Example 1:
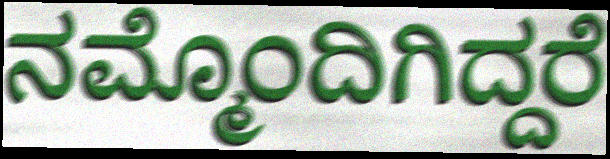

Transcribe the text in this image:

ನಮ್ಮೊಂದಿಗಿದ್ದರೆ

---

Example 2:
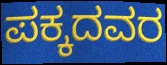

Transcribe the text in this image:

ಪಕ್ಕದವರ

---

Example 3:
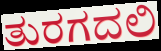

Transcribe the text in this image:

ತುರಗದಲಿ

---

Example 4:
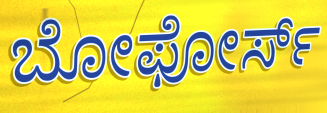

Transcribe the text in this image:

ಬೋಫೋರ್ಸ್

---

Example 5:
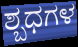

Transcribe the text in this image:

ಶ್ಬಧಗಳ